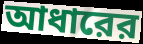
আধারের